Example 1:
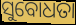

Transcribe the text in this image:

ସୁବୋଧତା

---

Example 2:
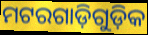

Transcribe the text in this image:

ମଟରଗାଡ଼ିଗୁଡ଼ିକ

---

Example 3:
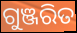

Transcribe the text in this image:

ଗୁଞ୍ଜରିତ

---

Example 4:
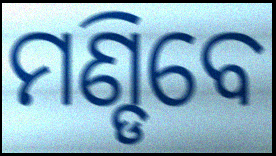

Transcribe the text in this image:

ମଣ୍ଡିବେ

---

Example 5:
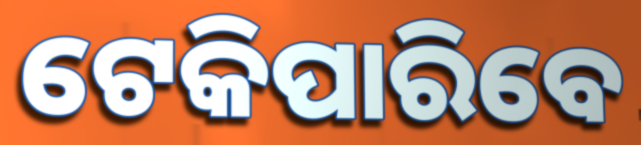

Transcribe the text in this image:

ଟେକିପାରିବେ